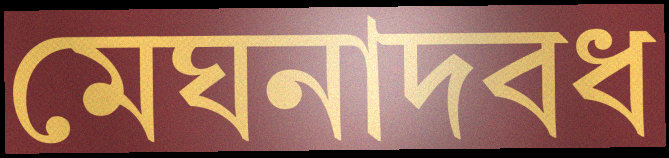
মেঘনাদবধ